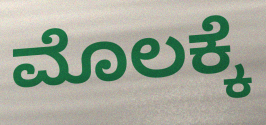
ಮೊಲಕ್ಕೆ